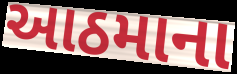
આઠમાના